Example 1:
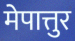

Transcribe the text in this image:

मेपात्तुर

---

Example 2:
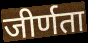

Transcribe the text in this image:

जीर्णता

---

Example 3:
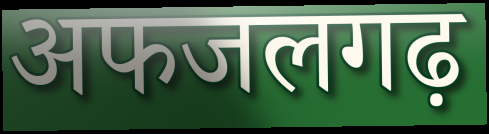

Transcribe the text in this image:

अफजलगढ़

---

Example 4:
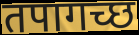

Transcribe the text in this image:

तपागच्छ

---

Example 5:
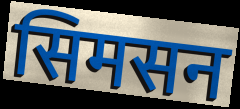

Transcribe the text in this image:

सिमसन